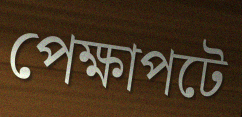
পেক্ষাপটে